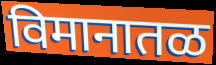
विमानातळ